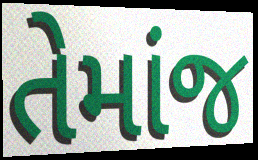
તેમાંજ